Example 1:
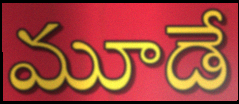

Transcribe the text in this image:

మూడే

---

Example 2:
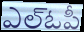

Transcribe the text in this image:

ఎల్ఓపీ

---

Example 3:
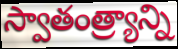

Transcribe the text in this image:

స్వాతంత్ర్యాన్ని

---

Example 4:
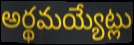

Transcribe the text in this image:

అర్థమయ్యేట్లు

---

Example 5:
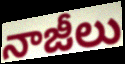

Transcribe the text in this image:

నాజీలు